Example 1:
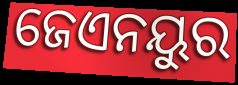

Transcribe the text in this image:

ଜେଏନୟୁର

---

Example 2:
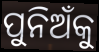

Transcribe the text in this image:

ପୁନିଅଁକୁ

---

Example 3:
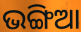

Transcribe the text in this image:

ଭଙ୍ଗିଆ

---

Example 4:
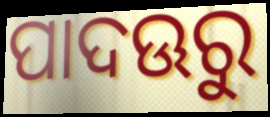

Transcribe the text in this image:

ପାଦଊରୁ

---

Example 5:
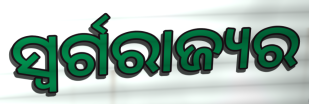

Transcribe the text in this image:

ସ୍ୱର୍ଗରାଜ୍ୟର